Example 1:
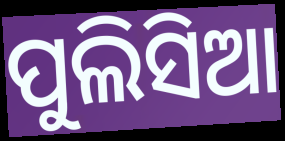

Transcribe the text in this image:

ପୁଲିସିଆ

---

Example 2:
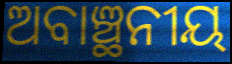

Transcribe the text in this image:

ଅବାଞ୍ଛନୀୟ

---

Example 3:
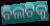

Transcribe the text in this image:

ବିଲଟିକୁ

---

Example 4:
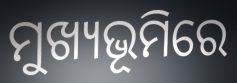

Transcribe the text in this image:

ମୁଖ୍ୟଭୂମିରେ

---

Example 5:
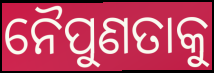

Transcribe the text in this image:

ନୈପୁଣତାକୁ